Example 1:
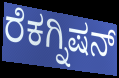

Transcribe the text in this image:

ರೆಕಗ್ನಿಷನ್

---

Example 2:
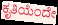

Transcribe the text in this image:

ಕೃತಿಯೆಂದೇ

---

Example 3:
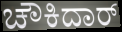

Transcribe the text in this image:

ಚೌಕಿದಾರ್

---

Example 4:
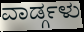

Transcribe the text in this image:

ವಾರ್ಡ್ಗಳು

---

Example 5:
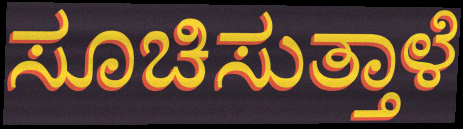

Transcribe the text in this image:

ಸೂಚಿಸುತ್ತಾಳೆ